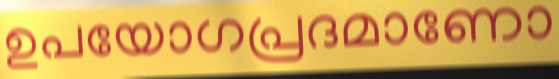
ഉപയോഗപ്രദമാണോ